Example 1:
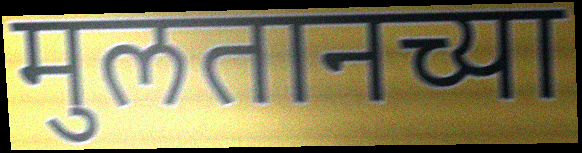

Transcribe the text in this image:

मुलतानच्या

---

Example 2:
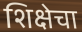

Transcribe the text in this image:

शिक्षेचा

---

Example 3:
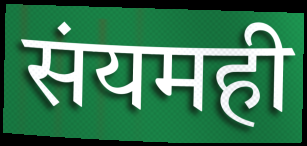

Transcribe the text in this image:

संयमही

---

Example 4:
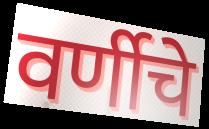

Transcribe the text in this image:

वर्णीचे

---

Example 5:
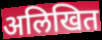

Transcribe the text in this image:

अलिखित